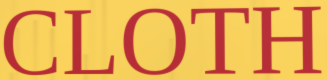
CLOTH